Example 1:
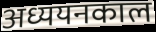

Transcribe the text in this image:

अध्ययनकाल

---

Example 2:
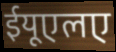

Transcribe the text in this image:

ईयूएलए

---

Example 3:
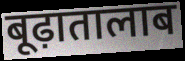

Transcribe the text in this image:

बूढ़ातालाब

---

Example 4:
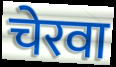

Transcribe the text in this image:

चेरवा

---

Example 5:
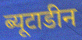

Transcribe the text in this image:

ब्यूटाडीन